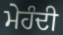
ਮੇਹੰਦੀ